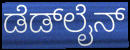
ಡೆಡ್‍ಲೈನ್